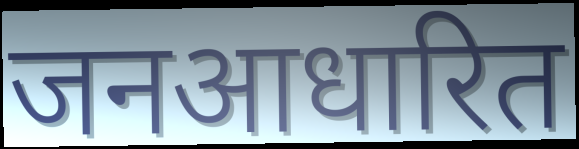
जनआधारित